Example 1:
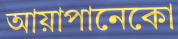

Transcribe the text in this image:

আয়াপানেকো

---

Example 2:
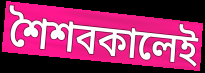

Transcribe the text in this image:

শৈশবকালেই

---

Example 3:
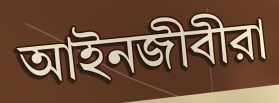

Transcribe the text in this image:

আইনজীবীরা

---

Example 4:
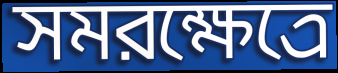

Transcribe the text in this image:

সমরক্ষেত্রে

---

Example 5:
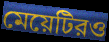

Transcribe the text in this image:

মেয়েটিরও